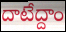
దాటేద్దాం